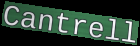
Cantrell